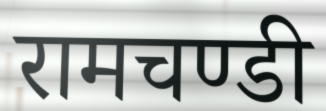
रामचण्डी